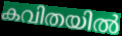
കവിതയിൽ